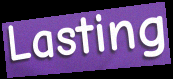
Lasting